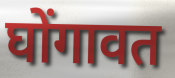
घोंगावत